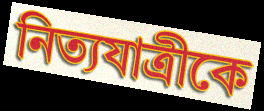
নিত্যযাত্রীকে